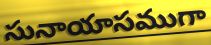
సునాయాసముగా